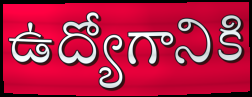
ఉద్యోగానికి